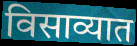
विसाव्यात